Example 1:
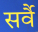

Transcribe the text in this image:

सर्वै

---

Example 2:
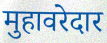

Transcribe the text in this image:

मुहावरेदार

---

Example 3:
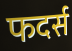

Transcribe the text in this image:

फदर्स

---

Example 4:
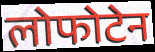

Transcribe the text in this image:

लोफोटेन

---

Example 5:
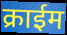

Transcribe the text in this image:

क्राईम